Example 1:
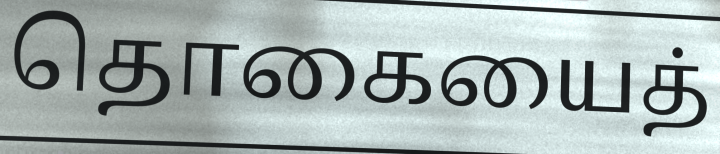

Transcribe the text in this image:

தொகையைத்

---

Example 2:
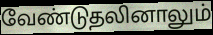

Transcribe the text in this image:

வேண்டுதலினாலும்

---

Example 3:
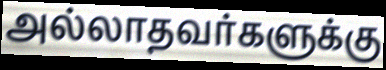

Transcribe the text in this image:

அல்லாதவர்களுக்கு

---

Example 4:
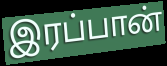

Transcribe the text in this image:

இரப்பான்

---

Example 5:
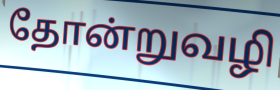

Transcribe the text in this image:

தோன்றுவழி